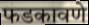
फडकावणे